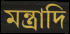
মন্ত্রাদি